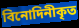
বিনোদিনীকৃত